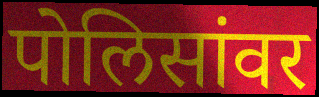
पोलिसांवर